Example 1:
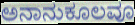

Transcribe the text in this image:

ಅನಾನುಕೂಲವೂ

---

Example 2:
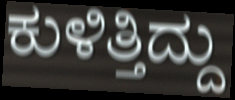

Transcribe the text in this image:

ಕುಳಿತ್ತಿದ್ದು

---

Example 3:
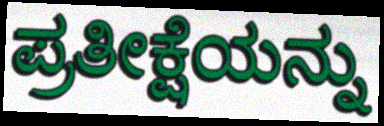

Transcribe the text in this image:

ಪ್ರತೀಕ್ಷೆಯನ್ನು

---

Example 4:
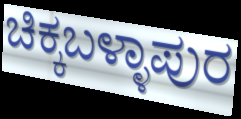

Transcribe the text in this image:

ಚಿಕ್ಕಬಳ್ಳಾಪುರ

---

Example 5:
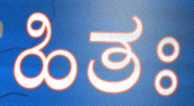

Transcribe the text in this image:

ಹಿತಃ